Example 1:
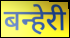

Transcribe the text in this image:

बन्हेरी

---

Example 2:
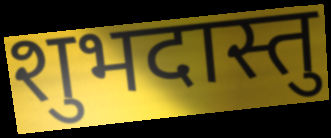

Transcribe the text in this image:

शुभदास्तु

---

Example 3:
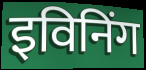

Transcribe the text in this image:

इविनिंग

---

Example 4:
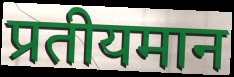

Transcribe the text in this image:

प्रतीयमान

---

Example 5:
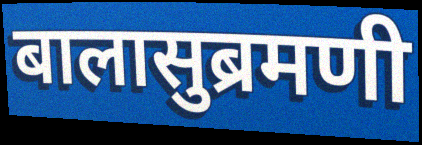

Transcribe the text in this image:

बालासुब्रमणी